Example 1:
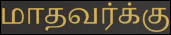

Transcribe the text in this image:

மாதவர்க்கு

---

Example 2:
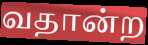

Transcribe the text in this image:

வதான்ற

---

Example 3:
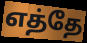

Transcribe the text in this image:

எத்தே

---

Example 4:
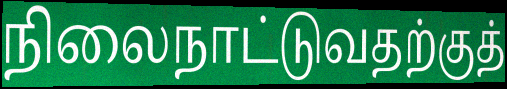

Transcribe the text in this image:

நிலைநாட்டுவதற்குத்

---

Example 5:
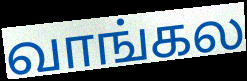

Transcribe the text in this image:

வாங்கல